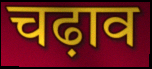
चढ़ाव